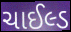
ચાઈલ્ડ